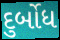
દુર્બોધ